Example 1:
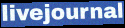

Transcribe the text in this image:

livejournal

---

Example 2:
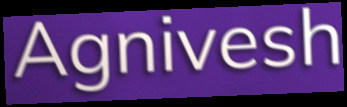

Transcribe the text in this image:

Agnivesh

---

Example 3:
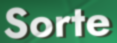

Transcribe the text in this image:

Sorte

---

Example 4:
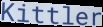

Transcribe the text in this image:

Kittler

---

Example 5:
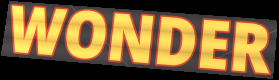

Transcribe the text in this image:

WONDER